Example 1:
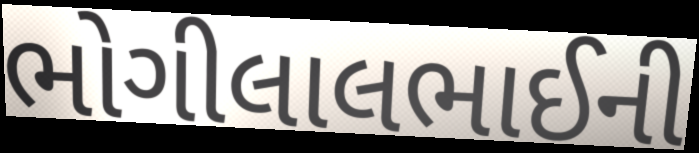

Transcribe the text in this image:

ભોગીલાલભાઈની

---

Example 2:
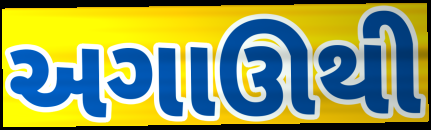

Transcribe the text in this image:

અગાઊથી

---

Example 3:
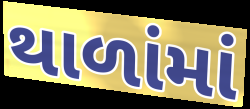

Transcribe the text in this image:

થાળાંમાં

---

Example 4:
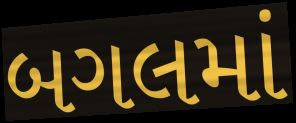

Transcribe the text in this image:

બગલમાં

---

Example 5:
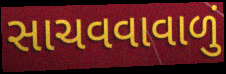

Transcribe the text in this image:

સાચવવાવાળું